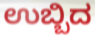
ಉಬ್ಬಿದ